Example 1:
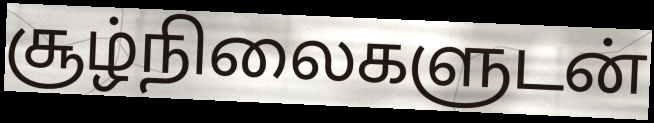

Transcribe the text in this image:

சூழ்நிலைகளுடன்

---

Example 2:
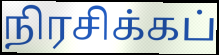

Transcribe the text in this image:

நிரசிக்கப்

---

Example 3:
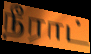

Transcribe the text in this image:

நீராட்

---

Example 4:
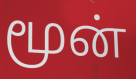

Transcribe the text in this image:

மூன்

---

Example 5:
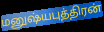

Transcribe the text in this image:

மனுஷ்யபுத்திரன்